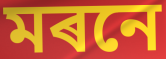
মৰনে